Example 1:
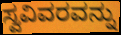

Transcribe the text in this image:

ಸ್ವವಿವರವನ್ನು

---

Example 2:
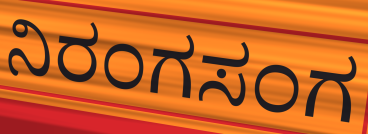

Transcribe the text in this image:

ನಿರಂಗಸಂಗ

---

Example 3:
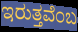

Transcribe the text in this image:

ಇರುತ್ತವೆಂಬ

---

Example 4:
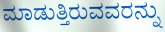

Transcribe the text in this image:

ಮಾಡುತ್ತಿರುವವರನ್ನು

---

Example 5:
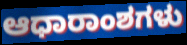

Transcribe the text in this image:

ಆಧಾರಾಂಶಗಳು